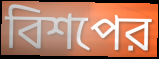
বিশপের